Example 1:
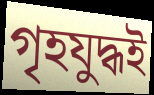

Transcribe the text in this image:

গৃহযুদ্ধই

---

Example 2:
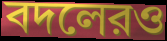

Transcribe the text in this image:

বদলেরও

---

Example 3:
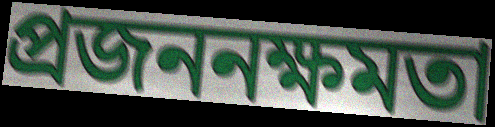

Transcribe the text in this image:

প্রজননক্ষমতা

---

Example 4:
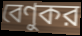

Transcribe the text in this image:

বেণুকর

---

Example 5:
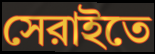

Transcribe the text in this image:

সেরাইতে